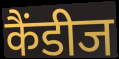
कैंडीज